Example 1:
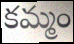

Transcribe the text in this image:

కమ్మం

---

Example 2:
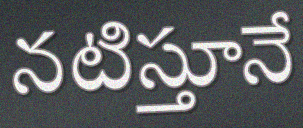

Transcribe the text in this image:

నటిస్తూనే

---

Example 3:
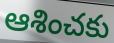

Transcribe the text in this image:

ఆశించకు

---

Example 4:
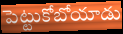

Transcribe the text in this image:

పెట్టుకోబోయాడు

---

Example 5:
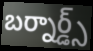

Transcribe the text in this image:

బర్నార్డ్స్